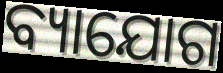
ବ୍ୟାଯୋଗ